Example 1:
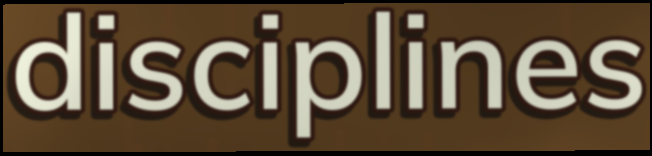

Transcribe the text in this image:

disciplines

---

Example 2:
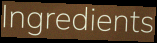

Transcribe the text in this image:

Ingredients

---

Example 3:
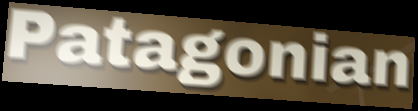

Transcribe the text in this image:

Patagonian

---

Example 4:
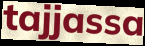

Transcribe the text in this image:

tajjassa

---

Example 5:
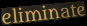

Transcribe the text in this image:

eliminate